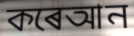
কৰেআন